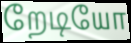
றேடியோ